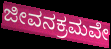
ಜೀವನಕ್ರಮವೇ